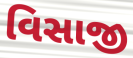
વિસાજી